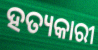
ହତ୍ୟକାରୀ